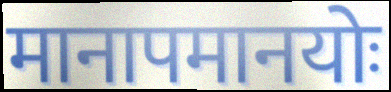
मानापमानयोः